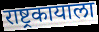
राष्ट्रकायाला